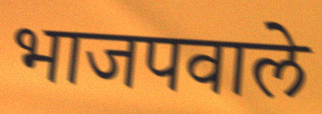
भाजपवाले